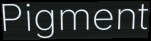
Pigment